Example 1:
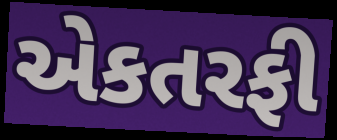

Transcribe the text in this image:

એકતરફી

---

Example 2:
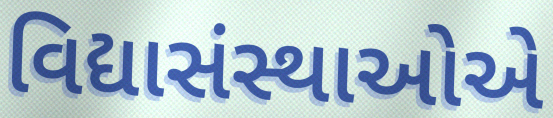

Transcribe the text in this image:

વિદ્યાસંસ્થાઓએ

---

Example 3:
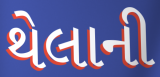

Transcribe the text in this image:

થેલાની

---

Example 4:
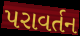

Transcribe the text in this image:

પરાવર્તન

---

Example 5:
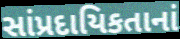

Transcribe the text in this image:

સાંપ્રદાયિકતાનાં